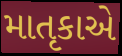
માતૃકાએ